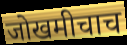
जोखमीचाच